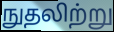
நுதலிற்று